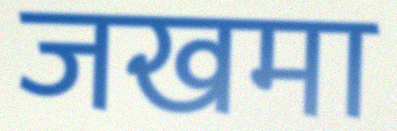
जखमा